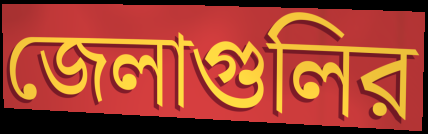
জেলাগুলির